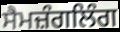
ਸੈਮਜ਼ੰਗਲਿੰਗ